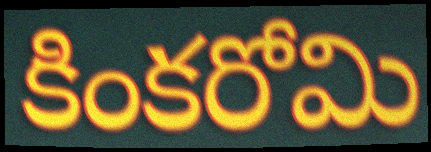
కింకరోమి